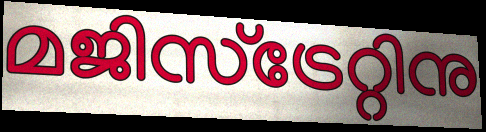
മജിസ്ട്രേറ്റിനു